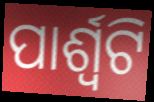
ପାର୍ଶ୍ଵଟି